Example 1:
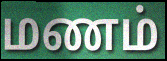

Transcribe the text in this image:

மணம்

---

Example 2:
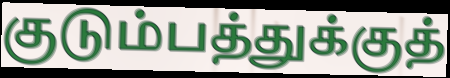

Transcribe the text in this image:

குடும்பத்துக்குத்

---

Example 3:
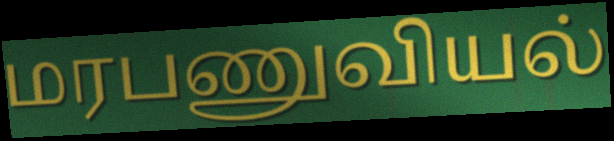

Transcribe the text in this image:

மரபணுவியல்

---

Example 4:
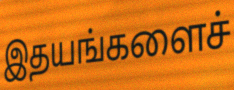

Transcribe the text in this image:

இதயங்களைச்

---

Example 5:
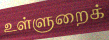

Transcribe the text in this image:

உள்ளுறைக்